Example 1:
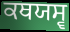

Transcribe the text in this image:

ਕਥਯਸ੍ਵ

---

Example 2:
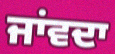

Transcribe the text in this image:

ਜਾਂਵਦਾ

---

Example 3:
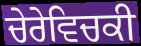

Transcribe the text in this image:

ਚੇਰੇਵਿਚਕੀ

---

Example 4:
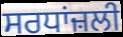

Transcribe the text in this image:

ਸਰਧਾਂਜ਼ਲੀ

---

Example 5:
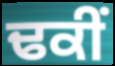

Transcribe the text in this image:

ਢਕੀਂ